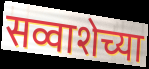
सव्वाशेच्या